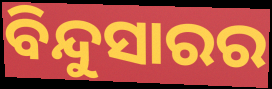
ବିନ୍ଦୁସାରର